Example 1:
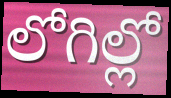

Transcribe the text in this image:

లోగిల్లో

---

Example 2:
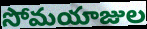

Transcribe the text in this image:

సోమయాజుల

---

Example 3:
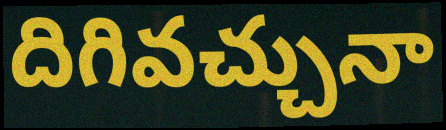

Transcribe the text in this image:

దిగివచ్చునా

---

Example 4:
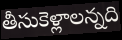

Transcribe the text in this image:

తీసుకెళ్లాలన్నది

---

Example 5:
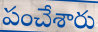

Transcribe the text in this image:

పంచేశారు